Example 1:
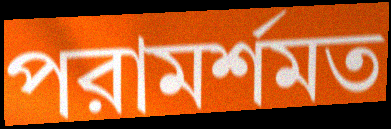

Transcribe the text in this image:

পরামর্শমত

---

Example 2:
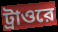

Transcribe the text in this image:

ট্রাওরে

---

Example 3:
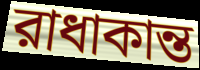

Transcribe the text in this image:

রাধাকান্ত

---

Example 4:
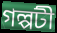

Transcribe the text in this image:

গল্পটী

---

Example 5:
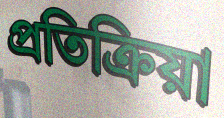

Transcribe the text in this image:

প্রতিক্রিয়া